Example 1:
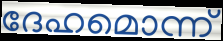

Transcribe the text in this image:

ദേഹമൊന്ന്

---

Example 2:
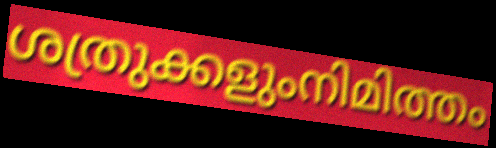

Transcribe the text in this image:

ശത്രുക്കളുംനിമിത്തം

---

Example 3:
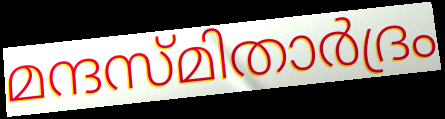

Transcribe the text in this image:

മന്ദസ്മിതാർദ്രം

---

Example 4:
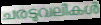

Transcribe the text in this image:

ചരടുവലികൾ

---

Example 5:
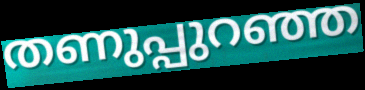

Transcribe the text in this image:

തണുപ്പുറഞ്ഞ